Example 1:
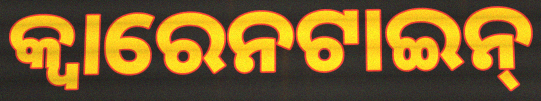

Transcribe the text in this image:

କ୍ୱାରେନଟାଇନ୍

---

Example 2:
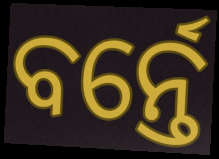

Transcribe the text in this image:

ବର୍ନ୍ତେ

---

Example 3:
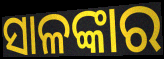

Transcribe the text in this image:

ସାଳଙ୍କାର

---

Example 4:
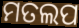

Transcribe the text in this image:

ମତଲପ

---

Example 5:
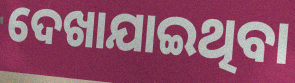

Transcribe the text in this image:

ଦେଖାଯାଇଥିବା